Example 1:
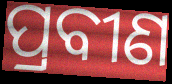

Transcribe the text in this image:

ପ୍ରବୀଣ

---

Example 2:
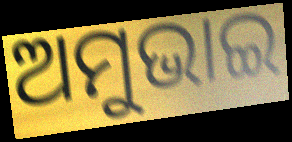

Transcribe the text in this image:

ଅମୁଭାଇ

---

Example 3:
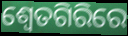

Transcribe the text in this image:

ଶ୍ୱେତଗିରିରେ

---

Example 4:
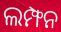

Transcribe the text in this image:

ଲମ୍ଫନ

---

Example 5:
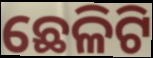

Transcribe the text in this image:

ଛେଳିଟି